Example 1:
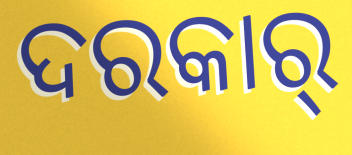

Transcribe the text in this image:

ଦରକାର୍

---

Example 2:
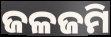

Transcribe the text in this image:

ଜଳଜମି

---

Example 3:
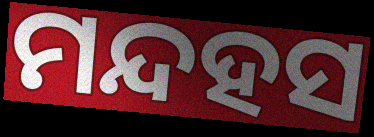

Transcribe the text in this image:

ମନ୍ଦହସ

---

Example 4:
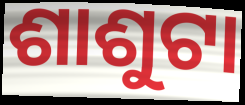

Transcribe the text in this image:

ଶାଶୁଟା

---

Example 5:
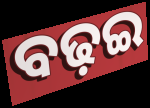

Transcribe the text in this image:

ବଢ଼ଇ